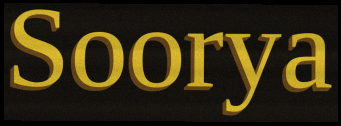
Soorya